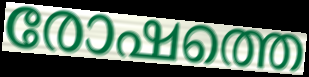
രോഷത്തെ